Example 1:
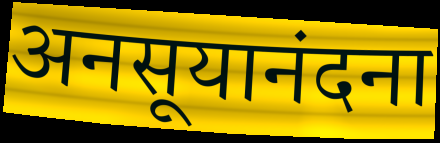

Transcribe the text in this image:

अनसूयानंदना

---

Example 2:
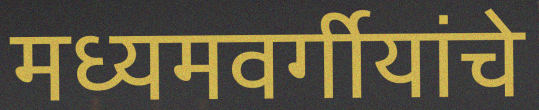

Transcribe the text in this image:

मध्यमवर्गीयांचे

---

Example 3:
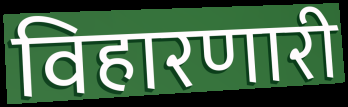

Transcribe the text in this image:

विहारणारी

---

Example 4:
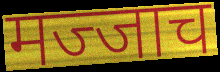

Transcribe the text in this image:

मज्जाच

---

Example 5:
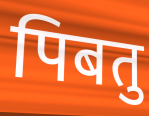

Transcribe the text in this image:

पिबतु